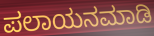
ಪಲಾಯನಮಾಡಿ